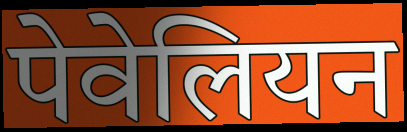
पेवेलियन